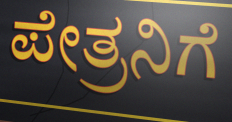
ಪೇತ್ರನಿಗೆ